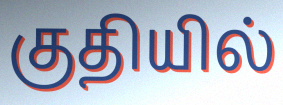
குதியில்